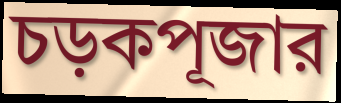
চড়কপূজার